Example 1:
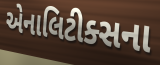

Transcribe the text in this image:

એનાલિટીક્સના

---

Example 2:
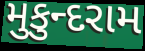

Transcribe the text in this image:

મુકુન્દરામ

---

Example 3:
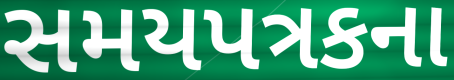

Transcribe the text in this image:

સમયપત્રકના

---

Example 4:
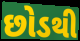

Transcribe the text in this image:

છોડથી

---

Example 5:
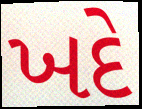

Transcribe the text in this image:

ખદે